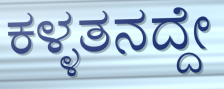
ಕಳ್ಳತನದ್ದೇ